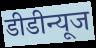
डीडीन्यूज